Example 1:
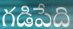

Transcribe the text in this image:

గడిపేది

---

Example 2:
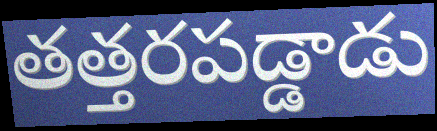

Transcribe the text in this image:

తత్తరపడ్డాడు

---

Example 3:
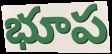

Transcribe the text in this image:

భూప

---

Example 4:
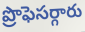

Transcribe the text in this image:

ప్రొఫెసర్గారు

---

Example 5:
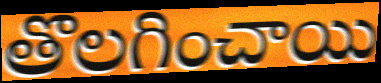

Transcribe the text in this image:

తొలగించాయి